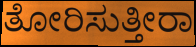
ತೋರಿಸುತ್ತೀರಾ